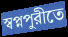
স্বপ্নপুরীতে